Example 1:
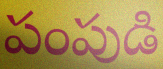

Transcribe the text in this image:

పంపుడి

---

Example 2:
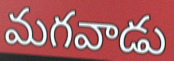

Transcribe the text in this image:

మగవాడు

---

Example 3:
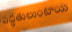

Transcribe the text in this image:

పద్ధతులుంటాయి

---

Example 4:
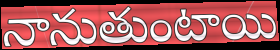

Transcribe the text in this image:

నానుతుంటాయి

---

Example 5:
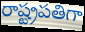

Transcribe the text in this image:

రాష్ట్రపతిగా